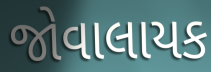
જોવાલાયક